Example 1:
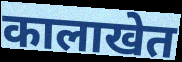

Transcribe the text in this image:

कालाखेत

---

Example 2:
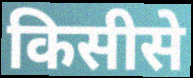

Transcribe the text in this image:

किसीसे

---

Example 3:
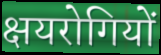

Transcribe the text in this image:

क्षयरोगियों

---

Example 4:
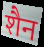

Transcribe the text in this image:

शैन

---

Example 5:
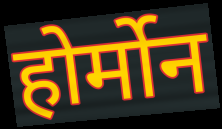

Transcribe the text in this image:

होर्मोन